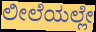
ಲೀಲೆಯಲ್ಲೇ